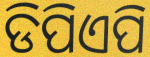
ଡିପିଏପି